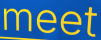
meet